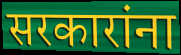
सरकारांना